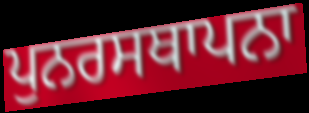
ਪੁਨਰਸਥਾਪਨਾ